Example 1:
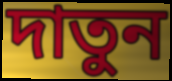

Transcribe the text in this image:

দাতুন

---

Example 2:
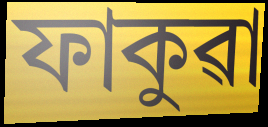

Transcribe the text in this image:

ফাকুৱা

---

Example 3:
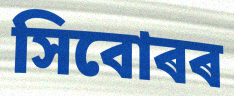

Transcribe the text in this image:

সিবোৰৰ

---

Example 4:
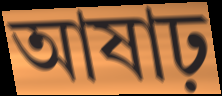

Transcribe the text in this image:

আষাঢ়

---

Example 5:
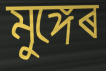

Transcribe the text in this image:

মুঙ্গেৰ